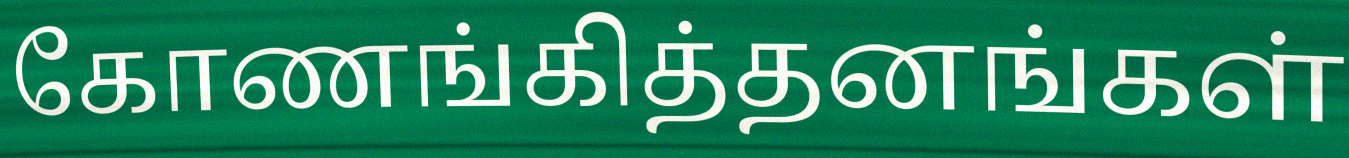
கோணங்கித்தனங்கள்